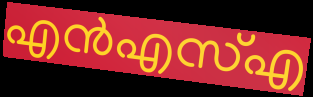
എൻഎസ്എ